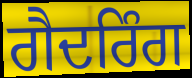
ਗੈਦਰਿੰਗ